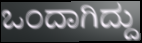
ಒಂದಾಗಿದ್ದು